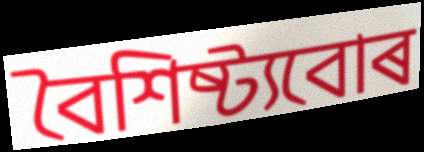
বৈশিষ্ট্যবোৰ